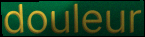
douleur